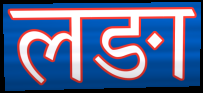
लङा